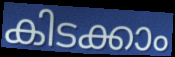
കിടക്കാം